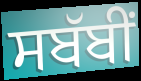
ਸਬੱਬੀਂ